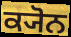
ਕ੍ਯੋਨ